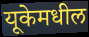
यूकेमधील